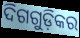
ଦିଗଗୁଡ଼ିକର